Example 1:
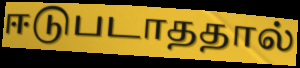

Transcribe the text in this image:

ஈடுபடாததால்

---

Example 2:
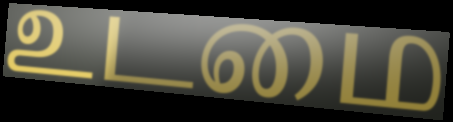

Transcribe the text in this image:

உடமை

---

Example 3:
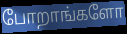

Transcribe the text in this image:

போறாங்களோ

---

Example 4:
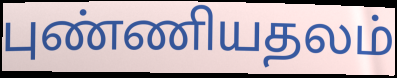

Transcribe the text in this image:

புண்ணியதலம்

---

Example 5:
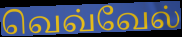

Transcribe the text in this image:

வெவ்வேல்